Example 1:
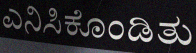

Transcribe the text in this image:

ಎನಿಸಿಕೊಂಡಿತು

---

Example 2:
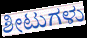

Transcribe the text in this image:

ಶೀಟುಗಳು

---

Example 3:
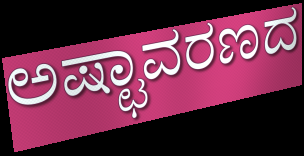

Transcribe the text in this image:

ಅಷ್ಟಾವರಣದ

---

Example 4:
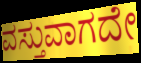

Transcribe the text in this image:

ವಸ್ತುವಾಗದೇ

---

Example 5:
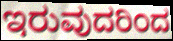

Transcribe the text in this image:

ಇರುವುದರಿಂದ